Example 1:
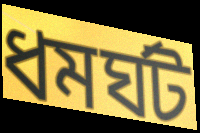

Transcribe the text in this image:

ধমর্ঘট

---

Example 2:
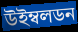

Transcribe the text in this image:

উইম্বলডন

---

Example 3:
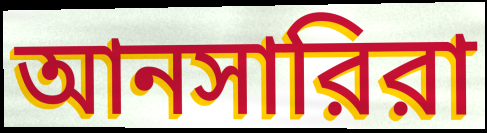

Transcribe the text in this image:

আনসারিরা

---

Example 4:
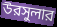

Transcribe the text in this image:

উরসুলার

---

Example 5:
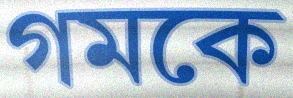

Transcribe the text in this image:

গমকে